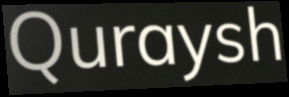
Quraysh